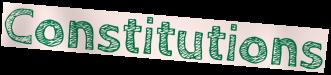
Constitutions